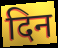
दिन